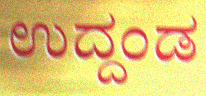
ಉದ್ದಂಡ